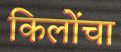
किलोंचा